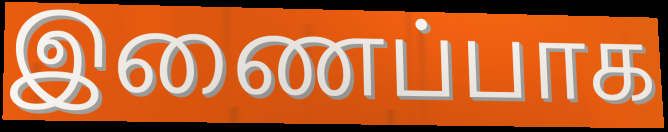
இணைப்பாக